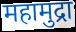
महामुद्रा